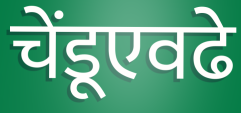
चेंडूएवढे